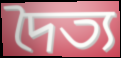
দৈত্য